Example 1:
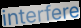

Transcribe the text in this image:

interfere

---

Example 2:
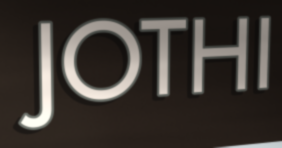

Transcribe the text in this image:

JOTHI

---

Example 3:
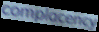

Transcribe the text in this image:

complacency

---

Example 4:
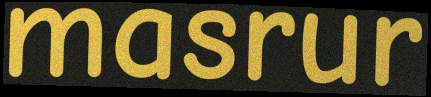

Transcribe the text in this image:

masrur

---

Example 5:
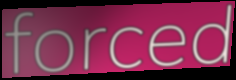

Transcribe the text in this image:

forced